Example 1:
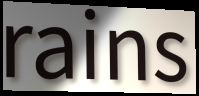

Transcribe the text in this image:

rains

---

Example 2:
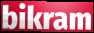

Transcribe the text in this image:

bikram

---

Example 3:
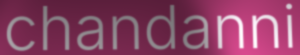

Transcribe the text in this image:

chandanni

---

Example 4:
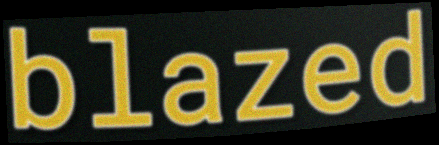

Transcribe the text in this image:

blazed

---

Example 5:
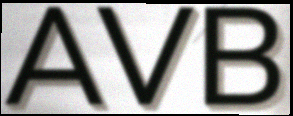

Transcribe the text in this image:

AVB